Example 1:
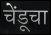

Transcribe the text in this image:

चेंडूचा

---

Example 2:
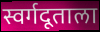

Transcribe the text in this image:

स्वर्गदूताला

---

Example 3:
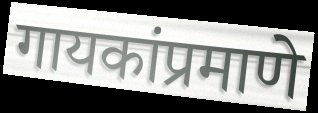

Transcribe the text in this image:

गायकांप्रमाणे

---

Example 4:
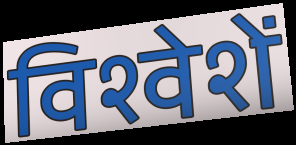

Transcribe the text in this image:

विश्वेशें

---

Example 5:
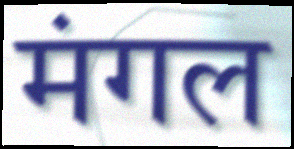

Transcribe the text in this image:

मंगल